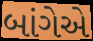
બાંગેએ